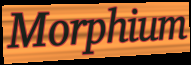
Morphium